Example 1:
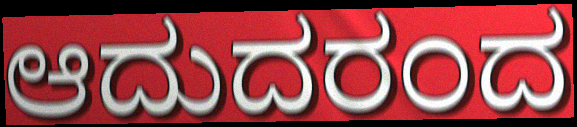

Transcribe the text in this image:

ಆದುದರಂದ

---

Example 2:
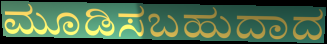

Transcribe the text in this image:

ಮೂಡಿಸಬಹುದಾದ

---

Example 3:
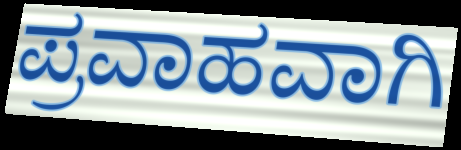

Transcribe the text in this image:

ಪ್ರವಾಹವಾಗಿ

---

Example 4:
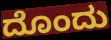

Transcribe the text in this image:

ದೊಂದು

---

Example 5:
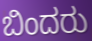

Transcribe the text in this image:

ಬಿಂದರು